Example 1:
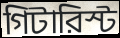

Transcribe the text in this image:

গিটারিস্ট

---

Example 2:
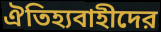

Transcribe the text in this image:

ঐতিহ্যবাহীদের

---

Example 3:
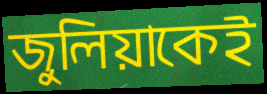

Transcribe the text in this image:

জুলিয়াকেই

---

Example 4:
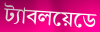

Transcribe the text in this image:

ট্যাবলয়েডে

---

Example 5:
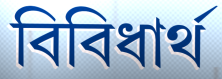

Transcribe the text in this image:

বিবিধার্থ